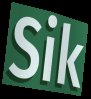
Sik